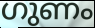
ഗുണം